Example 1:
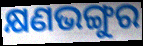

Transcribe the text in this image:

କ୍ଷଣଭଙ୍ଗୁର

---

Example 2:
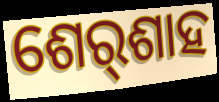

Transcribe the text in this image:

ଶେର୍‌ଶାହ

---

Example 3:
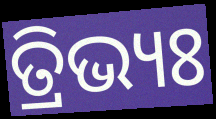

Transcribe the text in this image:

ତ୍ରିଭ୍ୟଃ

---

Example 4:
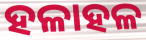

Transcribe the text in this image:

ହଳାହଳ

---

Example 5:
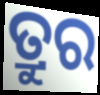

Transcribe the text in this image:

ତ୍ରୁର